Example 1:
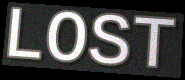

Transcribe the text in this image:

LOST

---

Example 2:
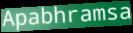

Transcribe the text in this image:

Apabhramsa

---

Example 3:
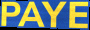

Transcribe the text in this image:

PAYE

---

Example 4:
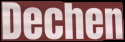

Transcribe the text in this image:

Dechen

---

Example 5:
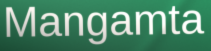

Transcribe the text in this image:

Mangamta